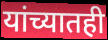
यांच्यातही